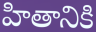
హితానికి